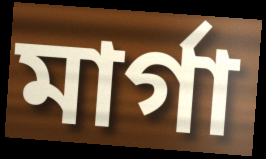
মাৰ্গা